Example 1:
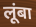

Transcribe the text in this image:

लूंबा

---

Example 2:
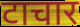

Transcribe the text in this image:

टाचार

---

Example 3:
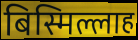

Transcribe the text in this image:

बिस्मिल्‍लाह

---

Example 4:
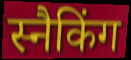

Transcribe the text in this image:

स्नैकिंग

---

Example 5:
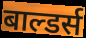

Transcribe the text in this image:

बाल्डर्स